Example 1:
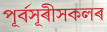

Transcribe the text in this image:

পূৰ্বসূৰীসকলৰ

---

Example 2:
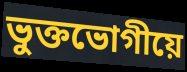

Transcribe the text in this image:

ভুক্তভোগীয়ে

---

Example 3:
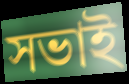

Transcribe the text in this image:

সভাই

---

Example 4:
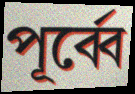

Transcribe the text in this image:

পূৰ্ব্বে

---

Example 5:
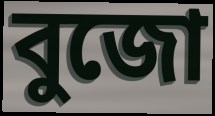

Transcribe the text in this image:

বুজো